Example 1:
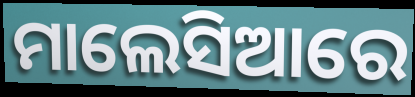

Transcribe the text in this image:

ମାଲେସିଆରେ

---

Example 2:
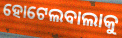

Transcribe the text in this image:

ହୋଟେଲବାଲାକୁ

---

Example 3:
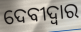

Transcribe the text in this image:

ଦେବୀଦ୍ବାର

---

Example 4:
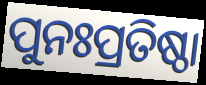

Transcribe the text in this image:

ପୁନଃପ୍ରତିଷ୍ଠା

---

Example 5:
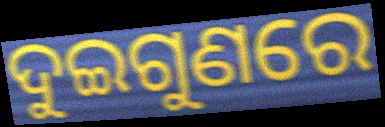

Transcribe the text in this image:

ଦୁଇଗୁଣରେ